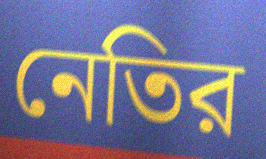
নেতির